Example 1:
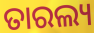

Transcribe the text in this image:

ତାରଲ୍ୟ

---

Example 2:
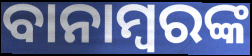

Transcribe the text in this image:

ବାନାମ୍ବରଙ୍କ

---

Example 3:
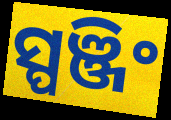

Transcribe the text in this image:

ସ୍ପଞ୍ଜିଂ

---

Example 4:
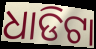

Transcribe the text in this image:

ଧାଡିଟା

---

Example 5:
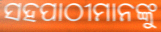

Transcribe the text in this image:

ସହପାଠୀମାନଙ୍କୁ